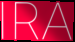
IRA